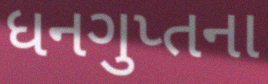
ધનગુપ્તના